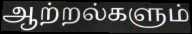
ஆற்றல்களும்